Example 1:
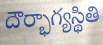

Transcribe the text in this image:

దౌర్భాగ్యస్థితి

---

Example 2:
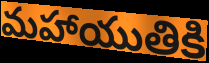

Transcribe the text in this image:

మహాయుతికి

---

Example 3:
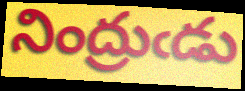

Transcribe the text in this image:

నింద్రుఁడు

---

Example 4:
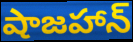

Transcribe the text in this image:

షాజహాన్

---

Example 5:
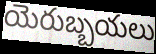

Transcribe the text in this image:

యెరుబ్బయలు